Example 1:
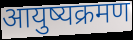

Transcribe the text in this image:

आयुष्यक्रमण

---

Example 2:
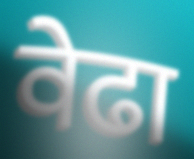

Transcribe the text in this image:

वेढा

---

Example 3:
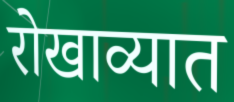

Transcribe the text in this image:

रोखाव्यात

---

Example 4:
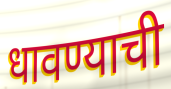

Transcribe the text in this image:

धावण्याची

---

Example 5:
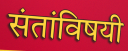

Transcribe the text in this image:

संतांविषयी